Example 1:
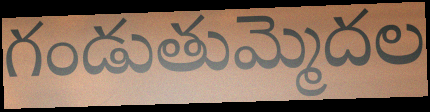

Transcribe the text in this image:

గండుతుమ్మెదల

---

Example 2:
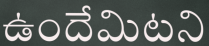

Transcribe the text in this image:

ఉందేమిటని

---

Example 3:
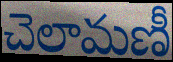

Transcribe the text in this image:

చెలామణీ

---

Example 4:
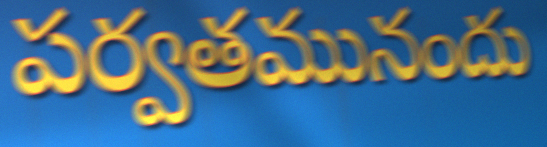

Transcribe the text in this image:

పర్వతమునందు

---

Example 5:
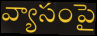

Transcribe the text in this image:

వ్యాసంపై